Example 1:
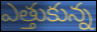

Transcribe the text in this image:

ఎత్తుకున్న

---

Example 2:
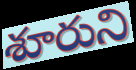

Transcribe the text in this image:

శూరుని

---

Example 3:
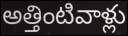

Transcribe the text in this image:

అత్తింటివాళ్లు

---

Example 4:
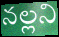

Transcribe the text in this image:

నల్లని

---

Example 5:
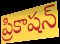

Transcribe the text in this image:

ప్రికాషన్